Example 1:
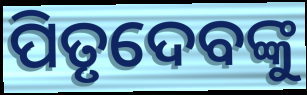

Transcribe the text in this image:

ପିତୃଦେବଙ୍କୁ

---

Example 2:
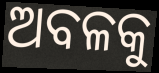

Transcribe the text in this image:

ଅବଳକୁ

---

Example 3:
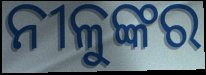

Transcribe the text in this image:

ନୀଳୁଙ୍କର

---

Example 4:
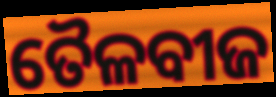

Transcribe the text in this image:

ତୈଳବୀଜ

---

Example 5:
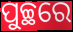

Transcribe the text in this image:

ପୁଚ୍ଛରେ